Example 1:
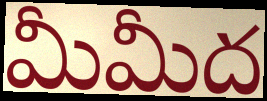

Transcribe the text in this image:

మీమీద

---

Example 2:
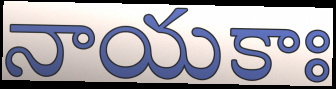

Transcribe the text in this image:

నాయకాః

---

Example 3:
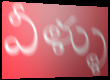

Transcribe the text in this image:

వీళ్ళు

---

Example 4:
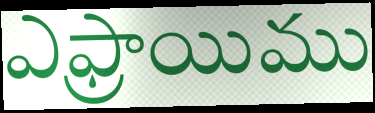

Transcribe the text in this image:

ఎఫ్రాయిము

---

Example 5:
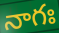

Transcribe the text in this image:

నాగః